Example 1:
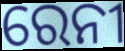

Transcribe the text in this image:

ରେନୀ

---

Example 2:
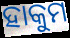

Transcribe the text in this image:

ହାକୁମ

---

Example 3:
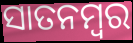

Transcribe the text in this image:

ସାତନମ୍ବର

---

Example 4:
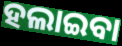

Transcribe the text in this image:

ହଲାଇବା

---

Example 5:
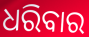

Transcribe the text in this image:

ଧରିବାର